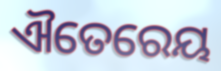
ଐତେରେୟ